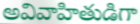
అవివాహితుడిగా